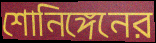
শোনিঙ্গেনের